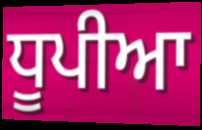
ਧੂਪੀਆ